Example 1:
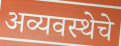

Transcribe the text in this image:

अव्यवस्थेचे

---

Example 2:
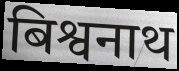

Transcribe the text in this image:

बिश्वनाथ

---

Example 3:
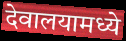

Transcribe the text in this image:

देवालयामध्ये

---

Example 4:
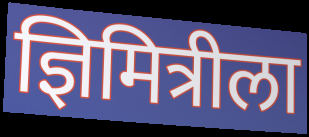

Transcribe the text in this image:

ज्ञिमित्रीला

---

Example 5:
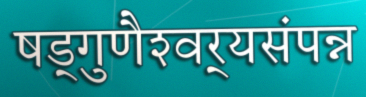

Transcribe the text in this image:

षड्‌गुणैश्वर्यसंपन्न